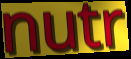
nutr